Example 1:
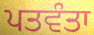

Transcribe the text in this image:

ਪਤਵੰਤਾ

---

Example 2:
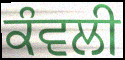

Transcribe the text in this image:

ਕੰਵਲੀ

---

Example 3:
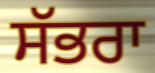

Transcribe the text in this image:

ਸੱਭਰਾ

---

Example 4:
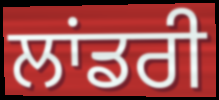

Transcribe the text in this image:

ਲਾਂਡਰੀ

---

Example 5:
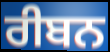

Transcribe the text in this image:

ਰੀਬਨ